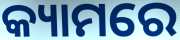
କ୍ୟାମରେ